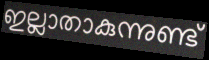
ഇല്ലാതാകുന്നുണ്ട്